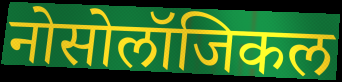
नोसोलॉजिकल